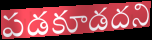
పడకూడదని